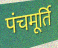
पंचमूर्ति